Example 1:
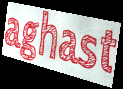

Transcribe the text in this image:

aghast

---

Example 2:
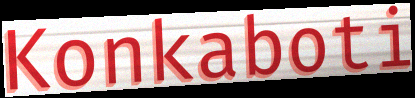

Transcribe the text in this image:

Konkaboti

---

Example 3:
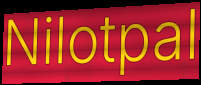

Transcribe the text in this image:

Nilotpal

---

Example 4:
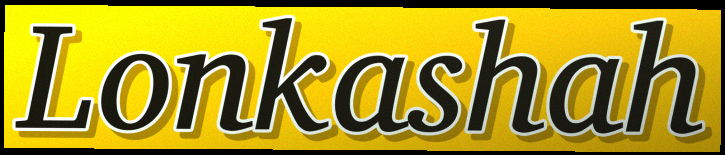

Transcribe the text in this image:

Lonkashah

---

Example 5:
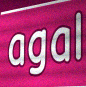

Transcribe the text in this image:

agal